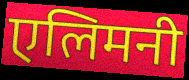
एलिमनी